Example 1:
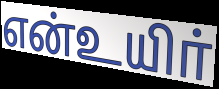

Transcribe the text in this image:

என்உயிர்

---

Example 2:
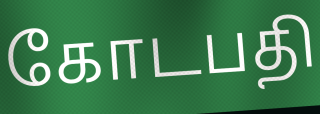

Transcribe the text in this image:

கோடபதி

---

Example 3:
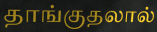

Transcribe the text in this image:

தாங்குதலால்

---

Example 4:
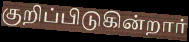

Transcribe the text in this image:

குறிப்பிடுகின்றார்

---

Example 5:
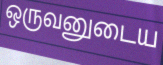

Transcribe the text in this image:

ஒருவனுடைய